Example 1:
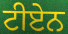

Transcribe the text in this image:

ਟੀਏਨ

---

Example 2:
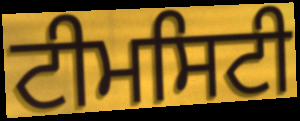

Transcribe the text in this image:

ਟੀਮਸਿਟੀ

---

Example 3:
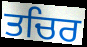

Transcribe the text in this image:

ਤਚਿਰ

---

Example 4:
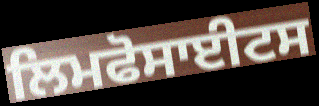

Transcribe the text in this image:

ਲਿਮਫੋਸਾਈਟਸ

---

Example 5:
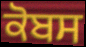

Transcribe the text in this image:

ਕੋਬਸ